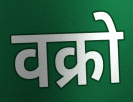
वक्रो